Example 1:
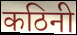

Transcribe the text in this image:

कठिनी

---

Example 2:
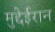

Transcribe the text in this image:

मुद्देईरान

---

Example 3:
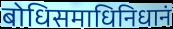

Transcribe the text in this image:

बोधिसमाधिनिधानं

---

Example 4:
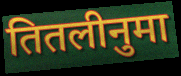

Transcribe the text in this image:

तितलीनुमा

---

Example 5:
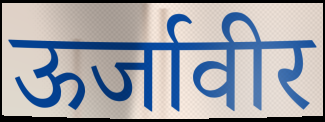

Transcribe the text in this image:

ऊर्जावीर